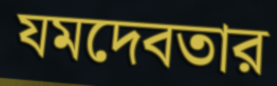
যমদেবতার